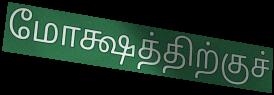
மோக்ஷத்திற்குச்